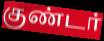
குண்டர்